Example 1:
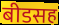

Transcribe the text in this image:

बीडसह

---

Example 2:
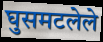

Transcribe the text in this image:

घुसमटलेले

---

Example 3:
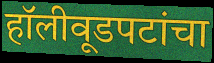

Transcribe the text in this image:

हॉलीवूडपटांचा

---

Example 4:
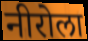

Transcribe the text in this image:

नीरोला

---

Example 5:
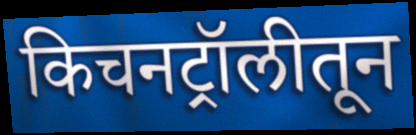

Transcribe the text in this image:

किचनट्रॉलीतून